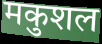
मकुशल